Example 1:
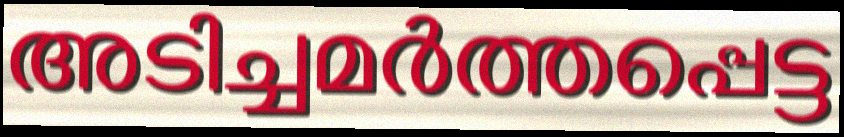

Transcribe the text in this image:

അടിച്ചമർത്തപ്പെട്ട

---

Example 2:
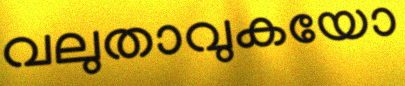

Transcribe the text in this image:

വലുതാവുകയോ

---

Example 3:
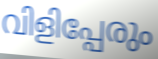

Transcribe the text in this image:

വിളിപ്പേരും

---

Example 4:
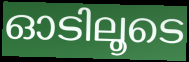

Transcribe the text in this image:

ഓടിലൂടെ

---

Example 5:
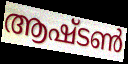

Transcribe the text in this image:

ആഷ്ടൺ